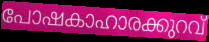
പോഷകാഹാരക്കുറവ്